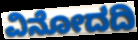
ವಿನೋದದಿ